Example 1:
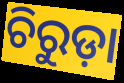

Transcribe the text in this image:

ଚିରୁଡ଼ା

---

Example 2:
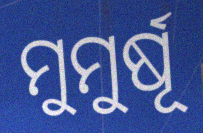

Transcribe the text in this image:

ମୁମୁର୍ଷୂ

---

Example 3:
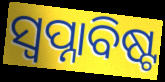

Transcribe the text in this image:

ସ୍ୱପ୍ନାବିଷ୍ଟ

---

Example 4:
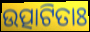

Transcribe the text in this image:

ଉତ୍ପାଟିତାଃ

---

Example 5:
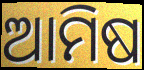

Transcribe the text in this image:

ଆମିଷ